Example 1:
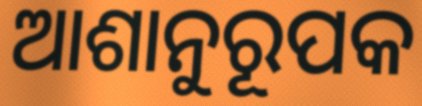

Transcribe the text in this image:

ଆଶାନୁରୂପକ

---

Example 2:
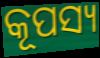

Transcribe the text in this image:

କୂପସ୍ୟ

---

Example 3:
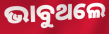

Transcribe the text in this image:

ଭାବୁଥଲେ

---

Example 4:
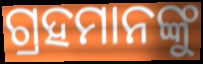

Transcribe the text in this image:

ଗ୍ରହମାନଙ୍କୁ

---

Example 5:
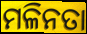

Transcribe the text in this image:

ମଳିନତା